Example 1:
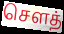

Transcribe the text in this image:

சௌத்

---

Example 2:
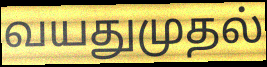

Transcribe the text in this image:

வயதுமுதல்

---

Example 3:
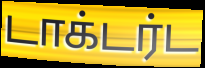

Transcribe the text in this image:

டாக்டர்ட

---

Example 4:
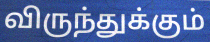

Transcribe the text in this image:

விருந்துக்கும்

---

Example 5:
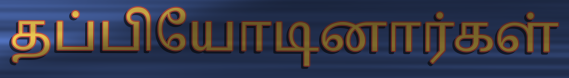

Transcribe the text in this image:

தப்பியோடினார்கள்